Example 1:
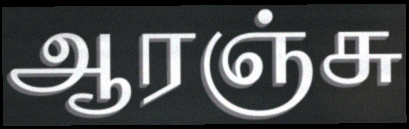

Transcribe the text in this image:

ஆரஞ்சு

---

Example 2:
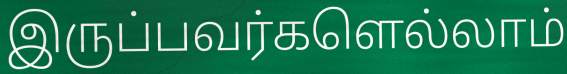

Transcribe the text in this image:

இருப்பவர்களெல்லாம்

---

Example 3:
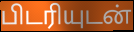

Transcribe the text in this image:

பிடரியுடன்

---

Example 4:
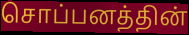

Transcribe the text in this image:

சொப்பனத்தின்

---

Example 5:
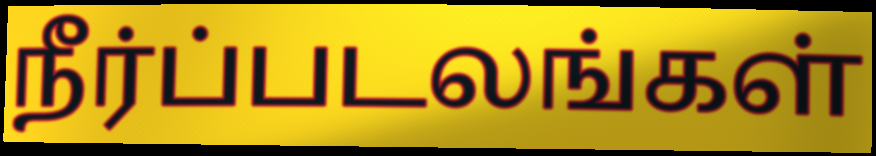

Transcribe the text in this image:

நீர்ப்படலங்கள்